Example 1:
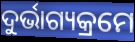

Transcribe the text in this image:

ଦୁର୍ଭାଗ୍ୟକ୍ରମେ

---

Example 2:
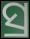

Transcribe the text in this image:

ସ୍ର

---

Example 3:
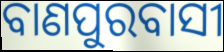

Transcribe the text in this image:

ବାଣପୁରବାସୀ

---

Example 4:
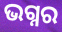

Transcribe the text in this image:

ଭଗ୍ନର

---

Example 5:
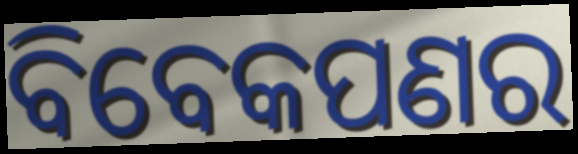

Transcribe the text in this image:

ବିବେକପଣର